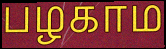
பழகாம